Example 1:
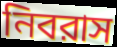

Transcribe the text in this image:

নিবরাস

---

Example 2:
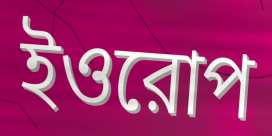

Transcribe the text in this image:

ইওরোপ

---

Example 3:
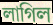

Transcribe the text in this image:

লাগিল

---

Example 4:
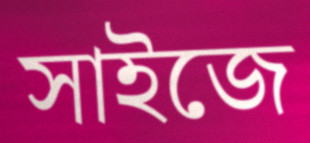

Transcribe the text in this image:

সাইজে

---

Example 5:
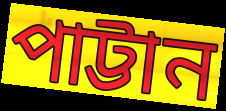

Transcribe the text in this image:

পাট্টান